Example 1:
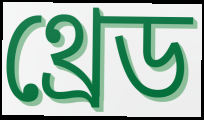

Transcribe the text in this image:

থ্রেড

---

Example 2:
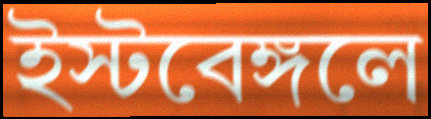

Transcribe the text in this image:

ইস্টবেঙ্গলে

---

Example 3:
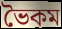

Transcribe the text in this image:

ভৈকম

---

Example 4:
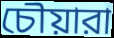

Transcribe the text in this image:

চৌয়ারা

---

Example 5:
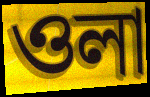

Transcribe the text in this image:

ওলা